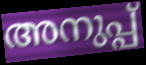
അനുപ്പ്